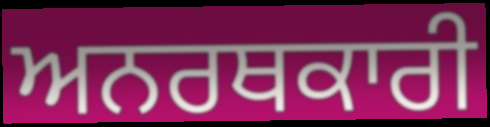
ਅਨਰਥਕਾਰੀ